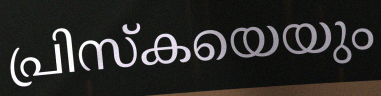
പ്രിസ്കയെയും